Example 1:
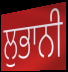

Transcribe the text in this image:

ਲੁਭਾਨੀ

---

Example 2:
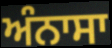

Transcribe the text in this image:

ਅੰਨਾਸਾ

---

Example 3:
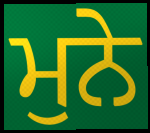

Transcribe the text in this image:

ਮੁਨੇ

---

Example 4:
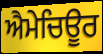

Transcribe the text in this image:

ਐਮੇਚਿਊਰ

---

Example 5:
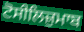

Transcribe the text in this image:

ਟੋਸੀਲਿਜ਼ੁਮਾਬ